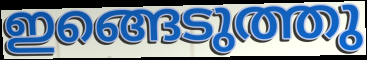
ഇങ്ങെടുത്തു